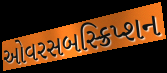
ઓવરસબસ્ક્રિપ્શન